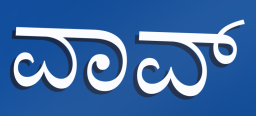
ವಾವ್